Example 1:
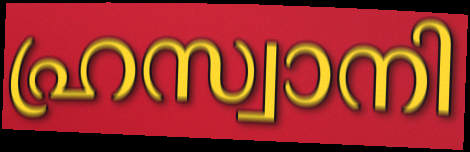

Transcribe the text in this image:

ഹ്രസ്വാനി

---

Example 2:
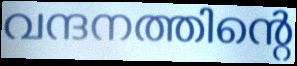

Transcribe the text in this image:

വന്ദനത്തിന്റെ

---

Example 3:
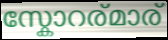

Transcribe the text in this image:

സ്കോറര്മാര്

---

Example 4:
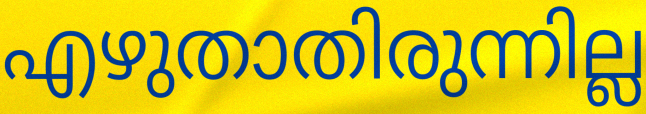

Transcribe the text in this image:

എഴുതാതിരുന്നില്ല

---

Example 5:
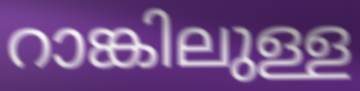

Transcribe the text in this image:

റാങ്കിലുള്ള